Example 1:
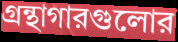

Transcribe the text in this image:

গ্রন্থাগারগুলোর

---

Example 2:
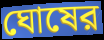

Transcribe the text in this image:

ঘোষের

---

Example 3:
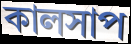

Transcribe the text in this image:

কালসাপ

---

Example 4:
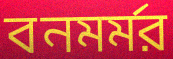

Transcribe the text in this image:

বনমর্মর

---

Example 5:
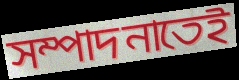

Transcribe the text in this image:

সম্পাদনাতেই